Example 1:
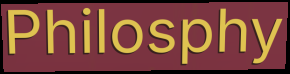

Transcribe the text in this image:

Philosphy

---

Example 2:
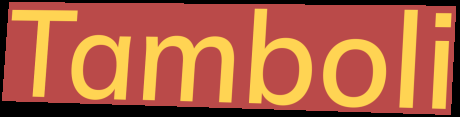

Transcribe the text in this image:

Tamboli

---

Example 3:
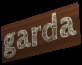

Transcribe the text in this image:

garda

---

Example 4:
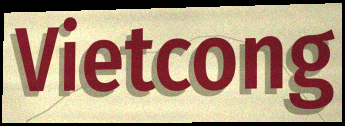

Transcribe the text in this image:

Vietcong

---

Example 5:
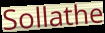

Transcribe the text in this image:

Sollathe